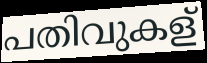
പതിവുകള്